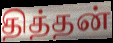
தித்தன்